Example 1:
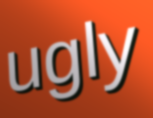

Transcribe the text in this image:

ugly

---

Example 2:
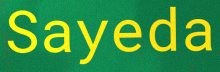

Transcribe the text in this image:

Sayeda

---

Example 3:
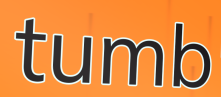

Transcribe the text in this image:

tumb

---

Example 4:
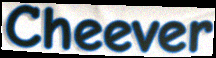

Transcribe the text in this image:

Cheever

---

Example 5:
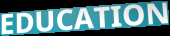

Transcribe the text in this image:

EDUCATION